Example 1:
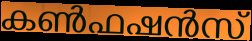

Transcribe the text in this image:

കൺഫഷൻസ്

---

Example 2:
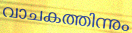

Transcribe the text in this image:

വാചകത്തിന്നും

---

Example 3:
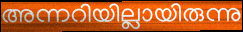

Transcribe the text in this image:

അന്നറിയില്ലായിരുന്നു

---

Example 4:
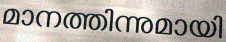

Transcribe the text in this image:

മാനത്തിന്നുമായി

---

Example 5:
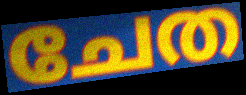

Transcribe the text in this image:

ചേത